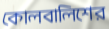
কোলবালিশের